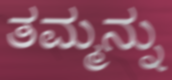
ತಮ್ಮನ್ನು